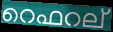
റെഫറല്